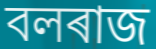
বলৰাজ